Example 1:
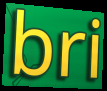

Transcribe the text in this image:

bri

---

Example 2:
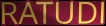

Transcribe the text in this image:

RATUDI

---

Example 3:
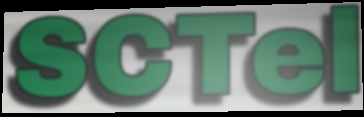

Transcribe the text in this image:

SCTel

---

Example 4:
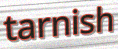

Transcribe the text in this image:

tarnish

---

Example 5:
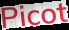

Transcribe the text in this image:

Picot